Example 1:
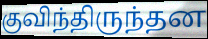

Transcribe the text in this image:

குவிந்திருந்தன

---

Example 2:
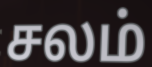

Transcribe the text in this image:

சலம்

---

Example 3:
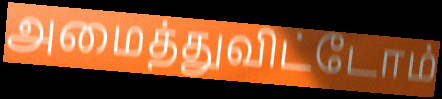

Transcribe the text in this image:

அமைத்துவிட்டோம்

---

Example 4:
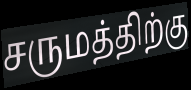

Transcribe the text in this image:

சருமத்திற்கு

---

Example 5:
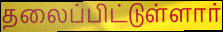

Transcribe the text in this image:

தலைப்பிட்டுள்ளார்